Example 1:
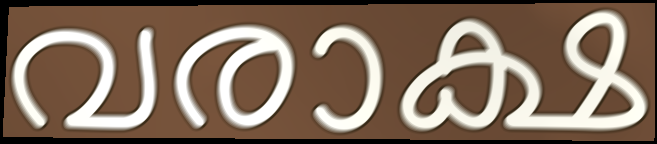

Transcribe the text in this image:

വരാക്ഷ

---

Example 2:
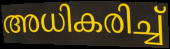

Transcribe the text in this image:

അധികരിച്ച്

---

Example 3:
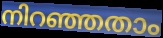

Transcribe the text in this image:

നിറഞ്ഞതാം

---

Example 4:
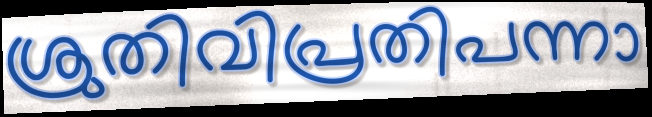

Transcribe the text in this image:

ശ്രുതിവിപ്രതിപന്നാ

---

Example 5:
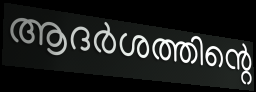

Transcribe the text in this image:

ആദർശത്തിന്റെ